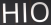
HIO